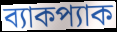
ব্যাকপ্যাক